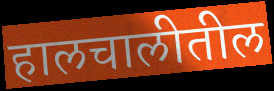
हालचालीतील